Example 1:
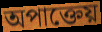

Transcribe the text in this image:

অপাক্তেয়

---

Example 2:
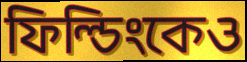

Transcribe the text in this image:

ফিল্ডিংকেও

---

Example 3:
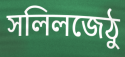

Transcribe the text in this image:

সলিলজেঠু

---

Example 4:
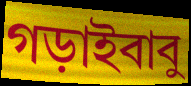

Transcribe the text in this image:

গড়াইবাবু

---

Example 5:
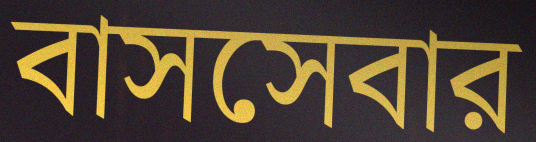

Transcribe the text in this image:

বাসসেবার